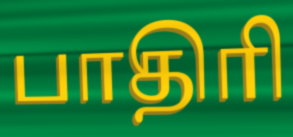
பாதிரி